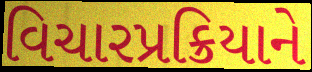
વિચારપ્રક્રિયાને